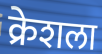
क्रेशला